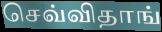
செவ்விதாங்